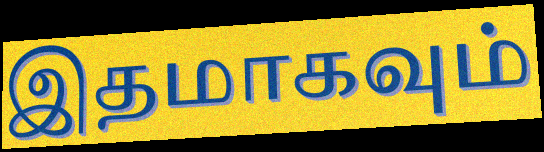
இதமாகவும்